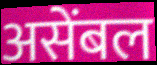
असेंबल